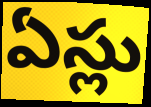
ఏస్లు